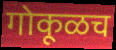
गोकूळच